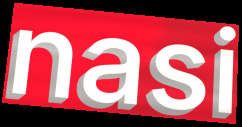
nasi